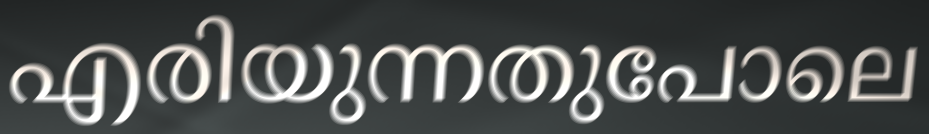
എരിയുന്നതുപോലെ